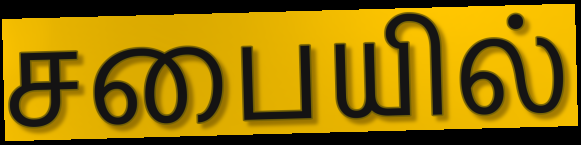
சபையில்